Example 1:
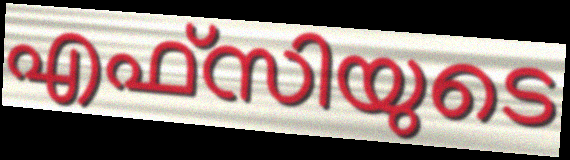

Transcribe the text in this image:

എഫ്സിയുടെ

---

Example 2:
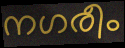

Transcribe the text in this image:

നഗരീം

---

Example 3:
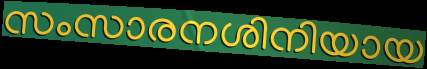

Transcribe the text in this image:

സംസാരനശിനിയായ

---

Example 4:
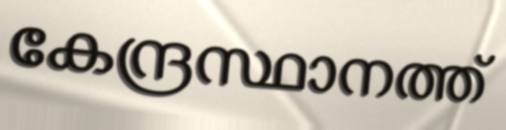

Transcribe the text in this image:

കേന്ദ്രസ്ഥാനത്ത്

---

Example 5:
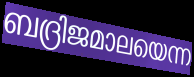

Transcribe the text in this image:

ബദ്രിജമാലയെന്ന